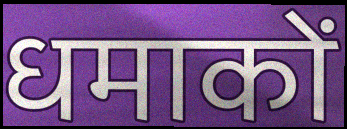
धमाकों